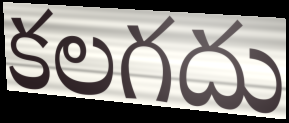
కలగదు